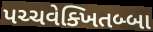
પચ્ચવેક્ખિતબ્બા